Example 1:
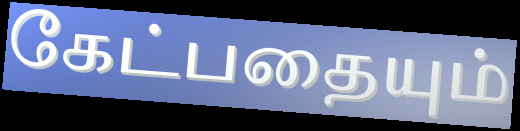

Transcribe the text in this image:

கேட்பதையும்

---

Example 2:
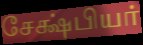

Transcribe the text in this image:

சேக்ஷ்பியர்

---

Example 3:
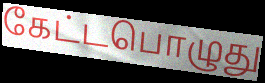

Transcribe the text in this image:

கேட்டபொழுது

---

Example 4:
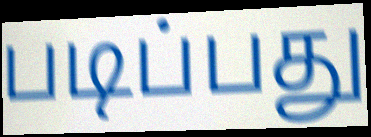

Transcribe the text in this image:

படிப்பது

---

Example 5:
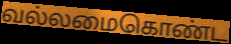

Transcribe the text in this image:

வல்லமைகொண்ட